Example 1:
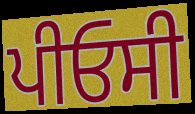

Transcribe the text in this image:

ਪੀਓਸੀ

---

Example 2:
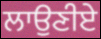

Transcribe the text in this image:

ਲਾਉਣੀਏ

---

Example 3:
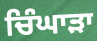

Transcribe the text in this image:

ਚਿੰਘਾੜਾ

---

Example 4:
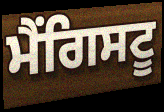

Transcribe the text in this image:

ਮੈਂਗਿਸਟੂ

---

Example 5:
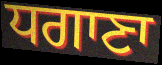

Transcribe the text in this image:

ਧਗਾਣਾ